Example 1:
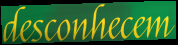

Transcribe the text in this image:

desconhecem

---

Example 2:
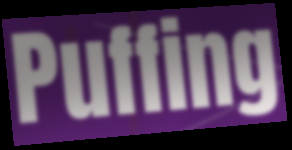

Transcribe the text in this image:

Puffing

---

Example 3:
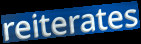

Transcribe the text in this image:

reiterates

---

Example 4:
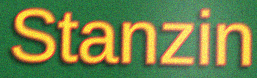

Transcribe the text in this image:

Stanzin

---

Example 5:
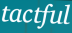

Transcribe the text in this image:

tactful